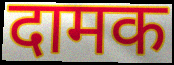
दामक